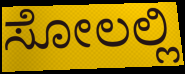
ಸೋಲಲ್ಲಿ